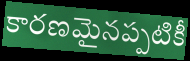
కారణమైనప్పటికీ